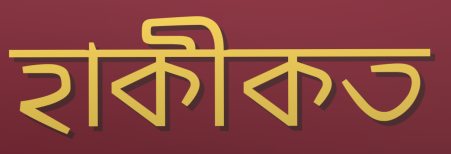
হাকীকত